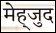
मेह्जुद